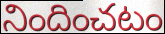
నిందించటం